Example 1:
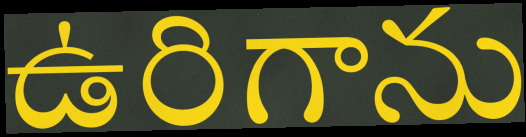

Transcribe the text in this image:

ఉరిగాను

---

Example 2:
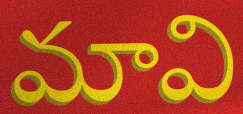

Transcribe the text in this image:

మావి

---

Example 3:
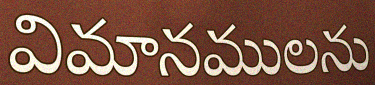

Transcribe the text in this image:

విమానములను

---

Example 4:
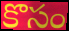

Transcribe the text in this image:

కొసం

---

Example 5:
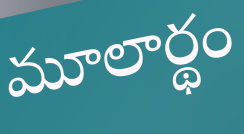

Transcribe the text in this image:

మూలార్థం